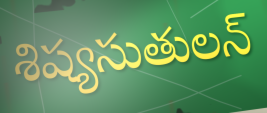
శిష్యసుతులన్